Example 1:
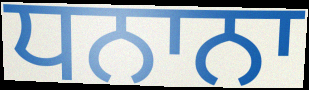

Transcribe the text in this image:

ਧਨਾਨਾ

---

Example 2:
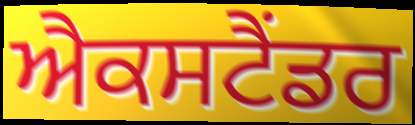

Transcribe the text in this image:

ਐਕਸਟੈਂਡਰ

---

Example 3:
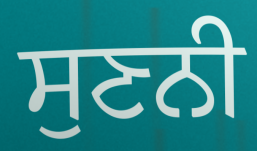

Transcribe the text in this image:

ਸੁਣਨੀ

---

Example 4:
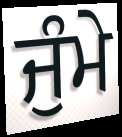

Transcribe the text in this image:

ਜੁੰਮੇ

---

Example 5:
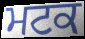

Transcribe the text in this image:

ਮਟਕ